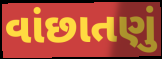
વાંછાતણું